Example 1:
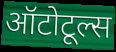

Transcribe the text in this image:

ऑटोटूल्स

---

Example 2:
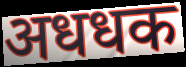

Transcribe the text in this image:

अधधक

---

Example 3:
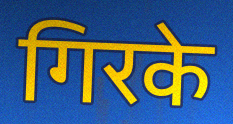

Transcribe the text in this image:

गिरके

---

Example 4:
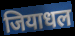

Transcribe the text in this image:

जियाधल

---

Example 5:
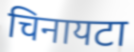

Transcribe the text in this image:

चिनायटा